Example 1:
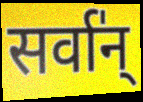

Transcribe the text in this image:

सर्वा॑न्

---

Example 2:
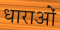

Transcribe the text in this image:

धाराओं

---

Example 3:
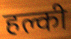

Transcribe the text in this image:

हल्की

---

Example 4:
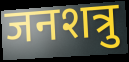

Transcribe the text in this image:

जनशत्रु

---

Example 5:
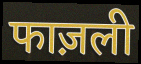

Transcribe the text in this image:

फाज़ली